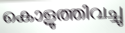
കൊളുത്തിവച്ചു